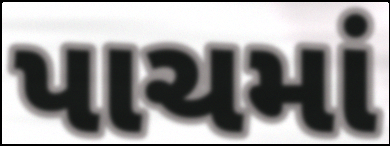
પાચમાં